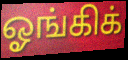
ஓங்கிக்